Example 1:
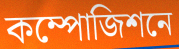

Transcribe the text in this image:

কম্পোজিশনে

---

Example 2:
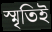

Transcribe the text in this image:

স্মৃতিই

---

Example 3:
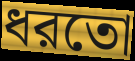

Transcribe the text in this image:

ধরতো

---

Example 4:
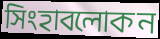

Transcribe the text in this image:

সিংহাবলোকন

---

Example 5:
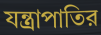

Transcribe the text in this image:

যন্ত্রাপাতির